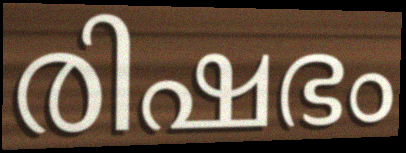
രിഷഭം